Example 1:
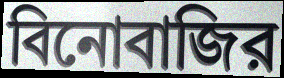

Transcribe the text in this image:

বিনোবাজির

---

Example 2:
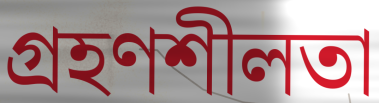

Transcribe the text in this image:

গ্রহণশীলতা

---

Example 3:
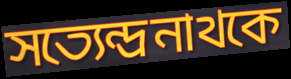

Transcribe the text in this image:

সত্যেন্দ্রনাথকে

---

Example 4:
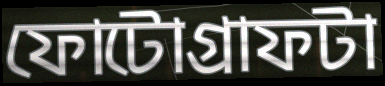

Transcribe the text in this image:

ফোটোগ্রাফটা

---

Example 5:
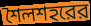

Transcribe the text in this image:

শৈলশহরের